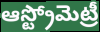
ఆస్ట్రోమెట్రీ